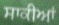
ਸਾਕੀਆਂ